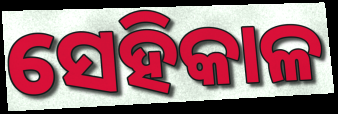
ସେହିକାଳ